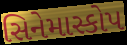
સિનેમાસ્કોપ